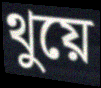
থুয়ে